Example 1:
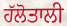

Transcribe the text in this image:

ਹੱਲੋਤਾਲੀ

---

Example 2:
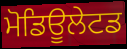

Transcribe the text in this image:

ਮੋਡਿਊਲੇਟਡ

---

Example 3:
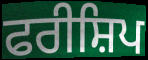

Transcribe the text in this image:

ਫਰੀਸ਼ਿਪ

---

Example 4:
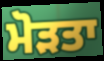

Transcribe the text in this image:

ਮੋੜਤਾ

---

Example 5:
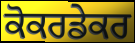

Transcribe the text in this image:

ਕੋਕਰਡੇਕਰ